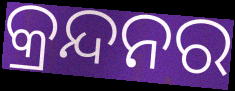
କ୍ରନ୍ଦନର